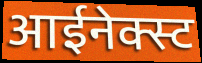
आईनेक्स्ट